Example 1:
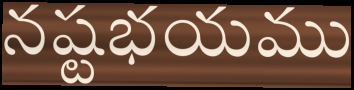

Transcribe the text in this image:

నష్టభయము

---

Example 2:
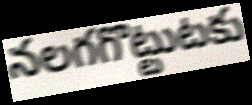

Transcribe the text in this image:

నలగగొట్టుటకు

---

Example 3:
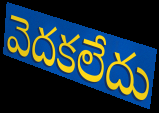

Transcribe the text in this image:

వెదకలేదు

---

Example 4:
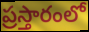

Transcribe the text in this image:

ప్రస్తారంలో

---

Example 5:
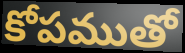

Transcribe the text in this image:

కోపముతో